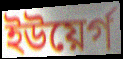
ইউয়ের্গ